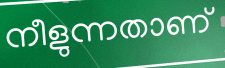
നീളുന്നതാണ്